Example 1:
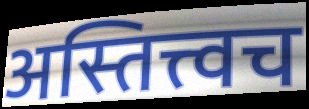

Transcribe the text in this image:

अस्तित्त्वच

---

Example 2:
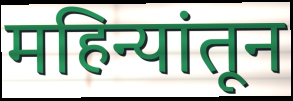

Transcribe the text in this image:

महिन्यांतून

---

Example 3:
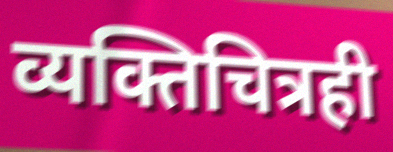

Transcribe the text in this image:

व्यक्तिचित्रही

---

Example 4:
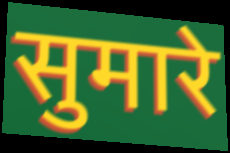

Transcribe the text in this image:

सुमारे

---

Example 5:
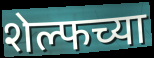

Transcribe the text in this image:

शेल्फच्या